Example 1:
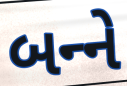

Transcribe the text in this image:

બન્‍ને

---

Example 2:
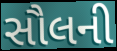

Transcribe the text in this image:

સૌલની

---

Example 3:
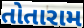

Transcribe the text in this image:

તોતારામ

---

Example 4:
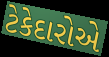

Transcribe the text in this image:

ટેકેદારોએ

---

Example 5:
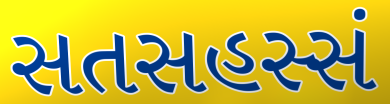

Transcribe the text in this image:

સતસહસ્સં